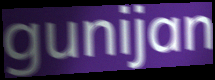
gunijan